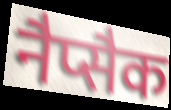
नैप्सैक